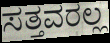
ಸತ್ತವರಲ್ಲ